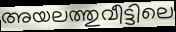
അയലത്തുവീട്ടിലെ